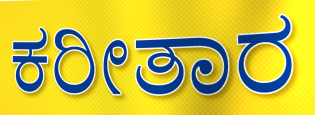
ಕರೀತಾರ